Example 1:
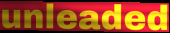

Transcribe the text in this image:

unleaded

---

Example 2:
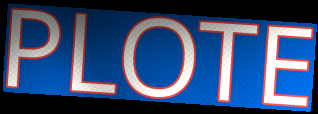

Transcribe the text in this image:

PLOTE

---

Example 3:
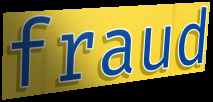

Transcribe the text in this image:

fraud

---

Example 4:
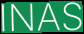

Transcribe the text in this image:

INAS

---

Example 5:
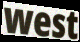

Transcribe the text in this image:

west